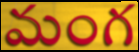
మంగ